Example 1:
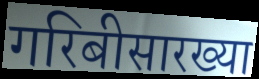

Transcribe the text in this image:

गरिबीसारख्या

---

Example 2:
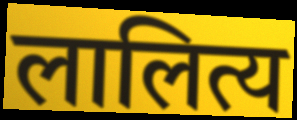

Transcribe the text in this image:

लालित्य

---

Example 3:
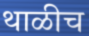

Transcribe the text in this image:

थाळीच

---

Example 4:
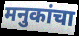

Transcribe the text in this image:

मनुकांचा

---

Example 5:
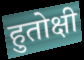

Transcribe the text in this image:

हुतोक्षी